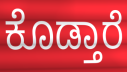
ಕೊಡ್ತಾರೆ